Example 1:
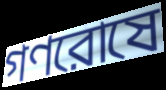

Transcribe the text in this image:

গণরোষে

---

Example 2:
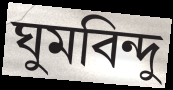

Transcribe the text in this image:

ঘুমবিন্দু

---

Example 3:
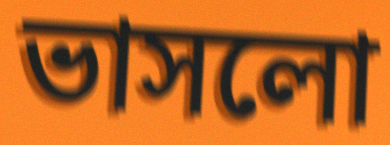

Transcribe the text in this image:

ভাসলো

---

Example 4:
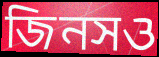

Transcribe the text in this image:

জিনসও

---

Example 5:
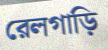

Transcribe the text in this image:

রেলগাড়ি